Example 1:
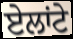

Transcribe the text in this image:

ਏਲਾਂਟੇ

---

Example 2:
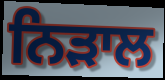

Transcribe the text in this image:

ਨਿੜਾਲ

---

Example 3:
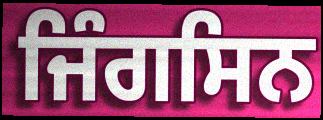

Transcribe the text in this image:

ਜਿੰਗਸਿਨ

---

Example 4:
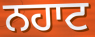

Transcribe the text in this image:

ਨਹਾਟ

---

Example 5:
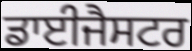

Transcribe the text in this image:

ਡਾਈਜੈਸਟਰ